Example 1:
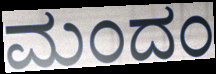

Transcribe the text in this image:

ಮಂದಂ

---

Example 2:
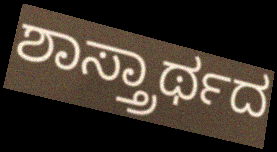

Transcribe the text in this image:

ಶಾಸ್ತ್ರಾರ್ಥದ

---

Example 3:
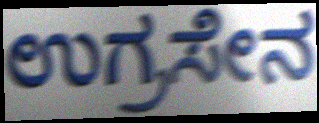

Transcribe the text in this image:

ಉಗ್ರಸೇನ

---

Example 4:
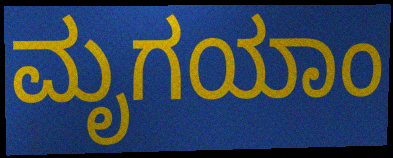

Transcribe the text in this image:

ಮೃಗಯಾಂ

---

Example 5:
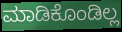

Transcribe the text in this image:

ಮಾಡಿಕೊಂಡಿಲ್ಲ